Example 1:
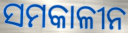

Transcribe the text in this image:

ସମକାଳୀନ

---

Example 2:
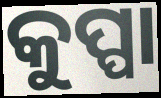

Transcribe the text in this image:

କୁପ୍ପା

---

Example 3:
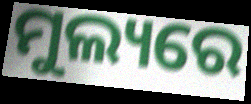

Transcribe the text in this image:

ମୁଲ୍ୟରେ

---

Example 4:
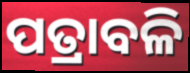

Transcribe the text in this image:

ପତ୍ରାବଳି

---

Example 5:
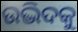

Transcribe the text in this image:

ଉଦ୍ଭିଦକୁ